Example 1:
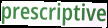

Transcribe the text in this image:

prescriptive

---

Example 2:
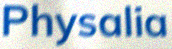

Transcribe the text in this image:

Physalia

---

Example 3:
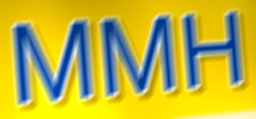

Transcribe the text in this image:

MMH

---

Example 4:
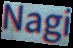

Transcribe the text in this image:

Nagi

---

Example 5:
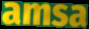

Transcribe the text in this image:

amsa